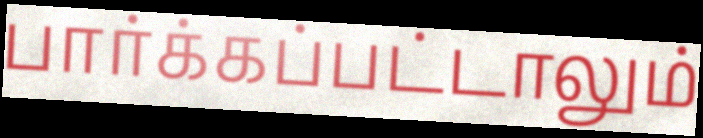
பார்க்கப்பட்டாலும்